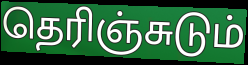
தெரிஞ்சுடும்